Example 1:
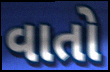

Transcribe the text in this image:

વાતો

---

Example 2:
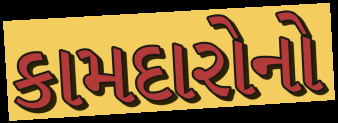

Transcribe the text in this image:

કામદારોનો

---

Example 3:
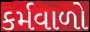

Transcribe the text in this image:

કર્મવાળો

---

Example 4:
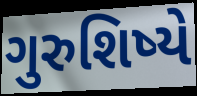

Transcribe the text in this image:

ગુરુશિષ્યે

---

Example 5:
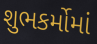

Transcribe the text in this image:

શુભકર્મોમાં